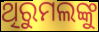
ଥିରୁମଲଙ୍କୁ